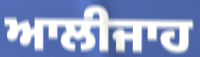
ਆਲੀਜਾਹ